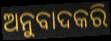
ଅନୁବାଦକରି